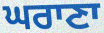
ਘਰਾਣਾ